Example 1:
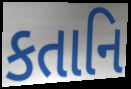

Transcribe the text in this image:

કતાનિ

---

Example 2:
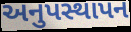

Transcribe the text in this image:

અનુપસ્થાપન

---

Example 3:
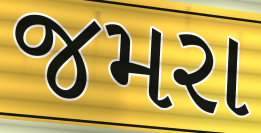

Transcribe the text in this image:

જમરા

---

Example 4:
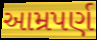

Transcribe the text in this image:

આમ્રપર્ણ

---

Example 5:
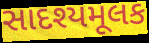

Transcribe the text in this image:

સાદશ્યમૂલક